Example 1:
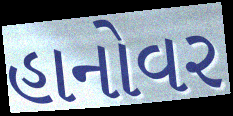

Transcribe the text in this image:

હાનોવર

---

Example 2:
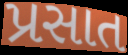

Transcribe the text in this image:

પ્રસાત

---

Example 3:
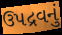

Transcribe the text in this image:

ઉપદ્રવનું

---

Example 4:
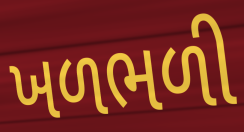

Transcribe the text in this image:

ખળભળી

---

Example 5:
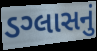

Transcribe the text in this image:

ડગ્લાસનું